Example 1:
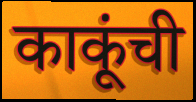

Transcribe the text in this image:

काकूंची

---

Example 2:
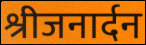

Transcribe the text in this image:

श्रीजनार्दन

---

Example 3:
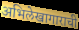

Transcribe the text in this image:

अभिलेखागाराची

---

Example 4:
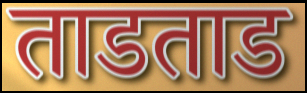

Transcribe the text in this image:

ताडताड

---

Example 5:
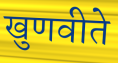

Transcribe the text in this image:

खुणवीते